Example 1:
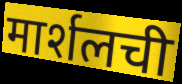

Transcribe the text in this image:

मार्शलची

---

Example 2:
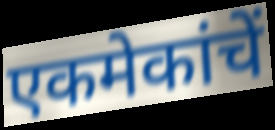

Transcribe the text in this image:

एकमेकांचें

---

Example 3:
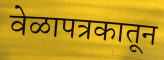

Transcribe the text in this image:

वेळापत्रकातून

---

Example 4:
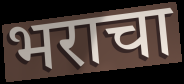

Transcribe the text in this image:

भराचा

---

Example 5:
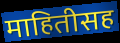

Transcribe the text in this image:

माहितीसह